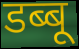
डब्बू